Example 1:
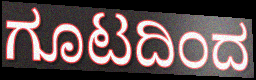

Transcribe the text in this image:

ಗೂಟದಿಂದ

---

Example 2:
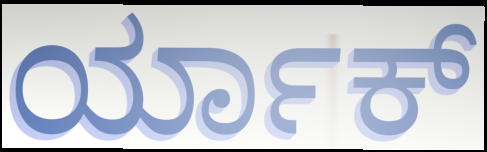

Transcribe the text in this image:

ರ್ಯಾಕ್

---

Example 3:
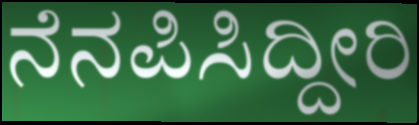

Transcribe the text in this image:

ನೆನಪಿಸಿದ್ದೀರಿ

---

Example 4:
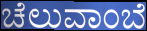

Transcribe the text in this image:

ಚೆಲುವಾಂಬೆ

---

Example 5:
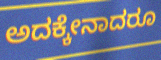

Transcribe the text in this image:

ಅದಕ್ಕೇನಾದರೂ